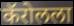
कॅरोलला